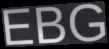
EBG